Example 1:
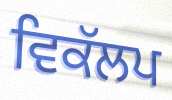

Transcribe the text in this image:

ਵਿਕੱਲਪ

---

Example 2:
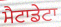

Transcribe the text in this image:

ਮੈਟਾਡੇਟਾ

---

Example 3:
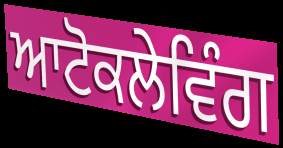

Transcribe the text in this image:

ਆਟੋਕਲੇਵਿੰਗ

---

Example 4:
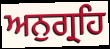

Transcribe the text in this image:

ਅਨੁਗ੍ਰਹਿ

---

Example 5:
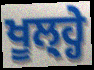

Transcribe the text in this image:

ਖੂਲ੍ਹ੍ਹੇ